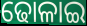
ଢୋଳାଇ